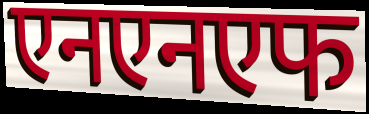
एनएनएफ